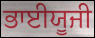
ਭਾਈਯੂਜੀ